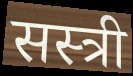
सस्त्री